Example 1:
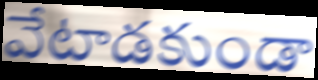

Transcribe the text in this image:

వేటాడకుండా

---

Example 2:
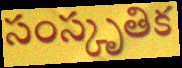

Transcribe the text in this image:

సంస్కృతిక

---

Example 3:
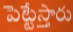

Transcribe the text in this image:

పెట్టేస్తారు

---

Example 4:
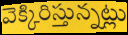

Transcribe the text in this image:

వెక్కిరిస్తున్నట్లు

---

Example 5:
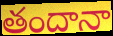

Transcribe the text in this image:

తందానా